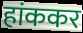
हांककर